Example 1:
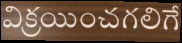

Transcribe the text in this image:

విక్రయించగలిగే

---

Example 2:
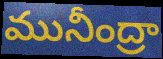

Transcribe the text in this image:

మునీంద్రా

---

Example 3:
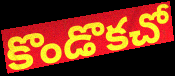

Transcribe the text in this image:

కొండొకచో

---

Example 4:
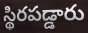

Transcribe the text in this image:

స్థిరపడ్డారు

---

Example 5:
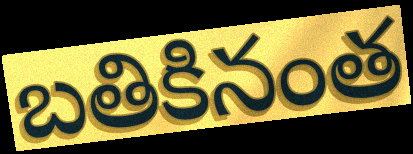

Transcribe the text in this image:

బతికినంత